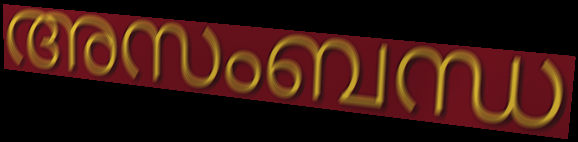
അസംബന്ധ